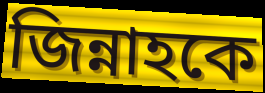
জিন্নাহকে